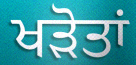
ਖੜੋਤਾਂ